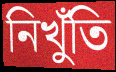
নিখুঁতি